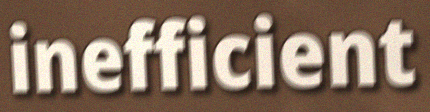
inefficient